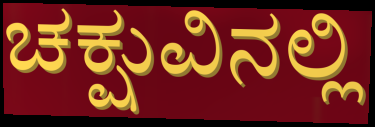
ಚಕ್ಷುವಿನಲ್ಲಿ